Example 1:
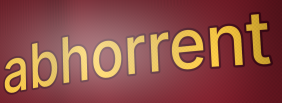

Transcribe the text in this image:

abhorrent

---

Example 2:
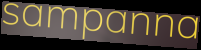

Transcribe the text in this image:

sampanna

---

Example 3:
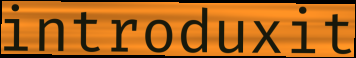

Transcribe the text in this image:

introduxit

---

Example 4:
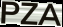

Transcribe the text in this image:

PZA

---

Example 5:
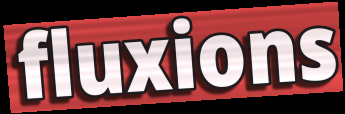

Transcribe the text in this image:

fluxions